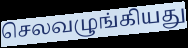
செலவழுங்கியது